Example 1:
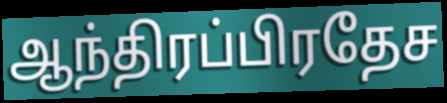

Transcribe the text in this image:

ஆந்திரப்பிரதேச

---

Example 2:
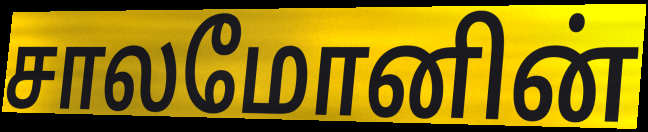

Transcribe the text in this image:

சாலமோனின்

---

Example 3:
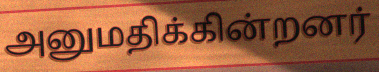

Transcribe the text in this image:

அனுமதிக்கின்றனர்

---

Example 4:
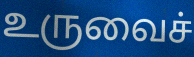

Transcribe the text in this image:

உருவைச்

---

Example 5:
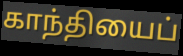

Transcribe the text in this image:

காந்தியைப்